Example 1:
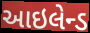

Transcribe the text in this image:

આઇલેન્ડ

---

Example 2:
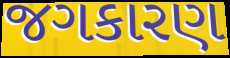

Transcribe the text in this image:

જગકારણ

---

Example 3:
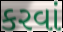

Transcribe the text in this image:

કરવાં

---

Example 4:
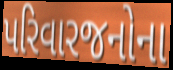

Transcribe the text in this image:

પરિવારજનોના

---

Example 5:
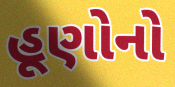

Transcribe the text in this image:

હૂણોનો